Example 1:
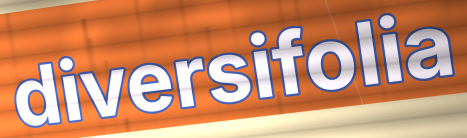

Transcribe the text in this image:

diversifolia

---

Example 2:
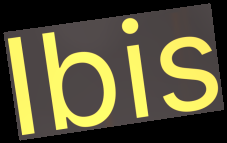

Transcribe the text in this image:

Ibis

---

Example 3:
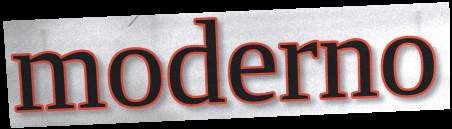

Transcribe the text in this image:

moderno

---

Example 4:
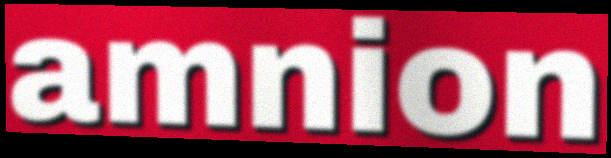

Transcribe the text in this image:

amnion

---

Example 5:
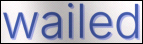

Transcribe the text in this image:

wailed